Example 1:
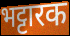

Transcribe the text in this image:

भट्टारक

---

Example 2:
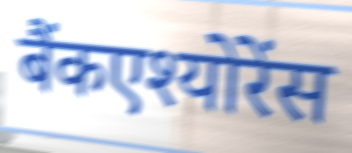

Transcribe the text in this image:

बैंकएश्योरेंस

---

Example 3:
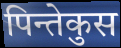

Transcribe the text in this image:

पिन्तेकुस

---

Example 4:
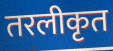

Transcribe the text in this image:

तरलीकृत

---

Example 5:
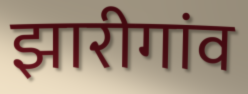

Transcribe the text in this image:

झारीगांव